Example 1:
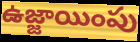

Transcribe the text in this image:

ఉజ్జాయింపు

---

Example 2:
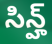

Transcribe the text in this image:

సిన్హ్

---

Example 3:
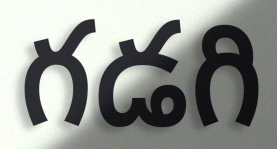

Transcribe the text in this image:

గడగి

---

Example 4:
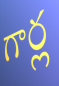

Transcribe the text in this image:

గార్ల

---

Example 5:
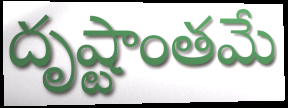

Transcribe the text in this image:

దృష్టాంతమే